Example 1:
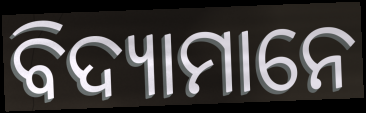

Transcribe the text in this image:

ବିଦ୍ୟାମାନେ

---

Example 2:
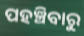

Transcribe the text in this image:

ପହଞ୍ଚିବାରୁ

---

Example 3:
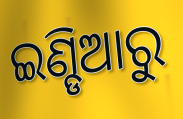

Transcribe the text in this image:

ଇଣ୍ଡିଆରୁ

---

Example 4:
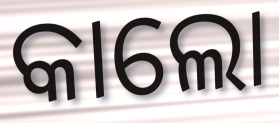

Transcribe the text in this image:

କାଲୋ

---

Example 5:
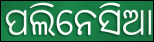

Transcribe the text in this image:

ପଲିନେସିଆ